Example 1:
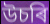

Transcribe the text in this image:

উচৰি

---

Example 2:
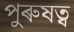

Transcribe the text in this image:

পুৰুষত্ব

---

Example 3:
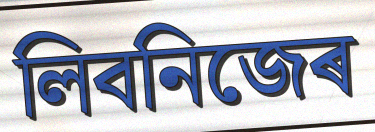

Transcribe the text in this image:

লিবনিজেৰ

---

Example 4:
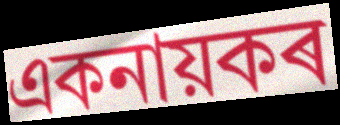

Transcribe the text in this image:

একনায়কৰ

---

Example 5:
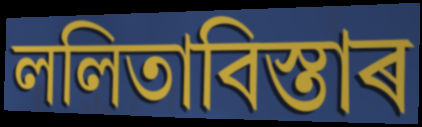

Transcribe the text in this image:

ললিতাবিস্তাৰ